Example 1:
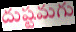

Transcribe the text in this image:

దుష్టమగు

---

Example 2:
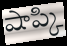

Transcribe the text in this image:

షాప్కి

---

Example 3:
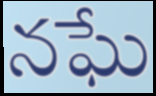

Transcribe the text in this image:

నఘే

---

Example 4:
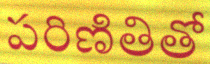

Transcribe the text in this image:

పరిణితితో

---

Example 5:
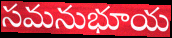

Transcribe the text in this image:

సమనుభూయ